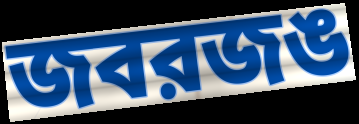
জবরজঙ